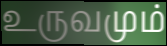
உருவமும்